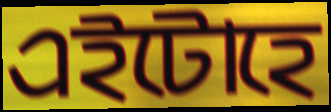
এইটোহে